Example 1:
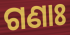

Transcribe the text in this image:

ଗଣାଃ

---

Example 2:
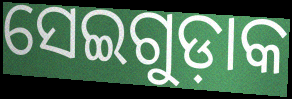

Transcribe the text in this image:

ସେଇଗୁଡ଼ାକ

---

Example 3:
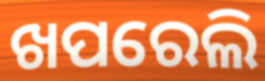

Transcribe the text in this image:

ଖପରେଲି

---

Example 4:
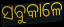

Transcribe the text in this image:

ସବୁକାଳେ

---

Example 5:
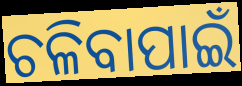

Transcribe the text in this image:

ଚଳିବାପାଇଁ